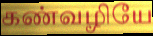
கண்வழியே